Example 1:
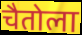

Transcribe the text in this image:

चैतोला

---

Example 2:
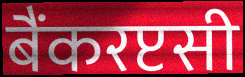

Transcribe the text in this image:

बैंकरप्टसी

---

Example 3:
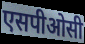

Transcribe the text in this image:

एसपीओसी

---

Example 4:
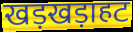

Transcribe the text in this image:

खड़खड़ाहट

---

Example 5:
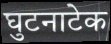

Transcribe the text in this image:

घुटनाटेक